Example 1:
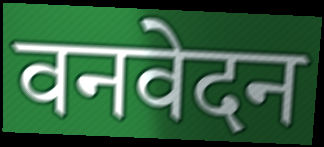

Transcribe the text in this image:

वनवेदन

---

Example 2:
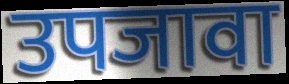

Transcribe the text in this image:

उपजावा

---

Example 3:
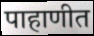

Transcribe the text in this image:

पाहाणीत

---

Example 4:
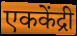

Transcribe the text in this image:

एककेंद्री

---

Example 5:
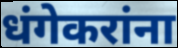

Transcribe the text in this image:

धंगेकरांना